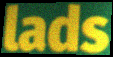
lads